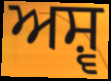
ਅਸ਼੍ਵ